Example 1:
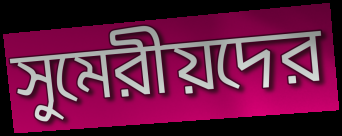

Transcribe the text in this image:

সুমেরীয়দের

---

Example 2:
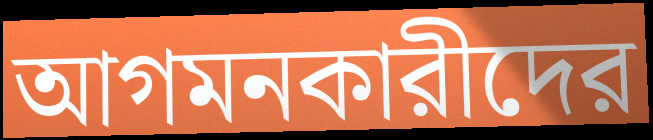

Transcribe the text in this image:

আগমনকারীদের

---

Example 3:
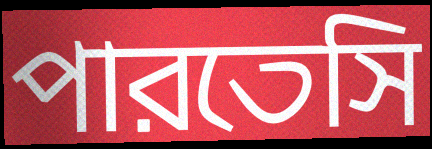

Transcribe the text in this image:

পারতেসি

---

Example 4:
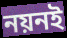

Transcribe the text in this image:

নয়নই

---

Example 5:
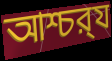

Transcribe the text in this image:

আশ্চর্‍য